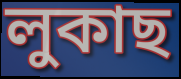
লুকাছ